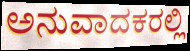
ಅನುವಾದಕರಲ್ಲಿ